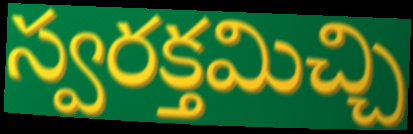
స్వరక్తమిచ్చి